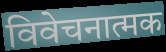
विवेचनात्मक